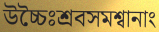
উচ্চৈঃশ্রবসমশ্বানাং